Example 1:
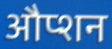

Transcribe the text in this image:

औप्शन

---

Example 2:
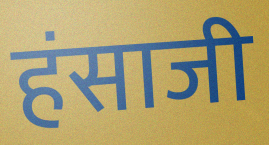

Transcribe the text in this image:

हंसाजी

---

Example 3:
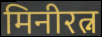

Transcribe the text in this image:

मिनीरत्न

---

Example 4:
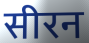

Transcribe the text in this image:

सीरन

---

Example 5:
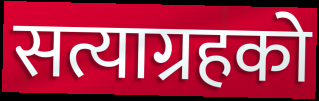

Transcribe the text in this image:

सत्याग्रहको